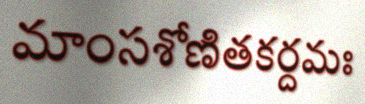
మాంసశోణితకర్దమః